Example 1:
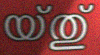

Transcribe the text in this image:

യ്തു്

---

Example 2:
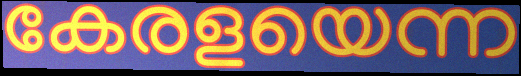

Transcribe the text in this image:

കേരളയെന്ന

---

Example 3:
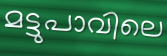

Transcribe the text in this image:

മട്ടുപാവിലെ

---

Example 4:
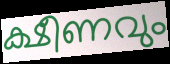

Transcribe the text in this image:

ക്ഷീണവും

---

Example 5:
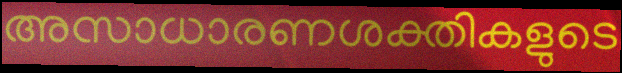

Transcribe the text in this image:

അസാധാരണശക്തികളുടെ